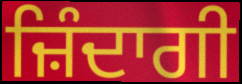
ਜ਼ਿੰਦਾਗੀ